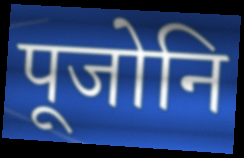
पूजोनि